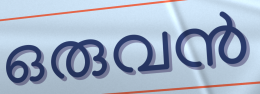
ഒരുവൻ